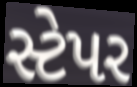
સ્ટેપર